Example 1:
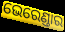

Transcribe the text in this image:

ଭେରେଣ୍ଡାର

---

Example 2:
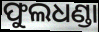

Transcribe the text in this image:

ଫୁଲଧଣ୍ଡା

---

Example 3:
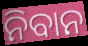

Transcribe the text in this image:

ନିବାନ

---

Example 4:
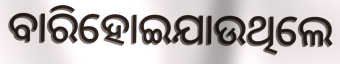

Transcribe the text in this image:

ବାରିହୋଇଯାଉଥିଲେ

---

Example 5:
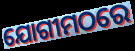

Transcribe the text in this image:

ଯୋଗୀମଠରେ